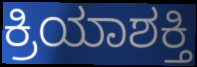
ಕ್ರಿಯಾಶಕ್ತಿ